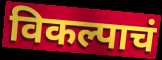
विकल्पाचं